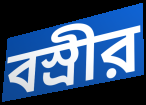
বস্রীর